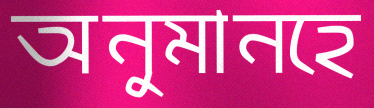
অনুমানহে